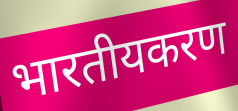
भारतीयकरण